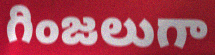
గింజలుగా